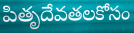
పితృదేవతలకోసం